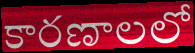
కారణాలలో